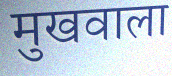
मुखवाला